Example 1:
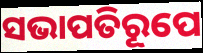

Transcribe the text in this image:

ସଭାପତିରୂପେ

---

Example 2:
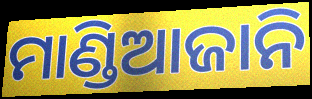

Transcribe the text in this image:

ମାଣ୍ଡିଆଜାନି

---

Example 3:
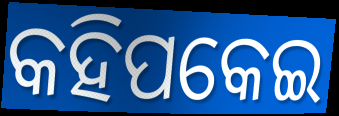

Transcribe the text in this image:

କହିପକେଇ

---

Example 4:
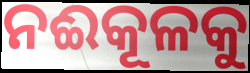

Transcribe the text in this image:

ନଈକୂଳକୁ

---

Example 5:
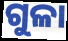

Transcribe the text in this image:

ଗୁଳା